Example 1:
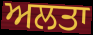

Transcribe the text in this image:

ਅਲਤਾ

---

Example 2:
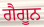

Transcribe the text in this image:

ਗੈਗੂਨ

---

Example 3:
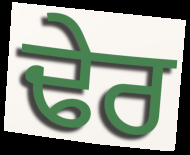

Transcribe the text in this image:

ਢੇਰ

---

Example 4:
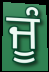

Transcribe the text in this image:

ਜੂੰ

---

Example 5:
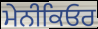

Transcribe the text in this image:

ਮੇਨੀਕਿਓਰ